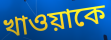
খাওয়াকে